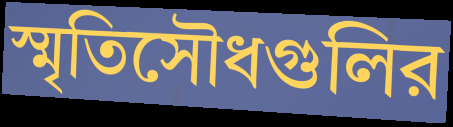
স্মৃতিসৌধগুলির